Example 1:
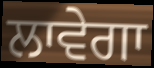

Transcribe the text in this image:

ਲਾਵੇਗਾ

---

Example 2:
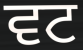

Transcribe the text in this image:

ਵਟ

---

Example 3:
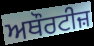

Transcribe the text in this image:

ਅਥੌਰਟੀਜ਼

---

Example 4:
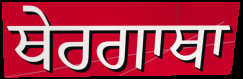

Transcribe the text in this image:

ਥੇਰਗਾਥਾ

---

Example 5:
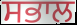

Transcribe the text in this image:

ਸਭਾਲ